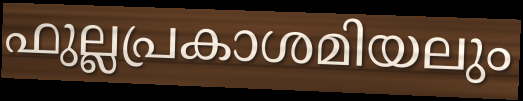
ഫുല്ലപ്രകാശമിയലും